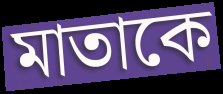
মাতাকে